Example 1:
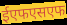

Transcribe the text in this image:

ईएफएसएफ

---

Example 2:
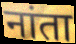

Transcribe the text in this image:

नांता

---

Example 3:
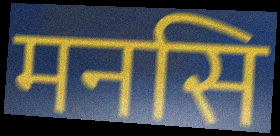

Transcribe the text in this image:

मनसि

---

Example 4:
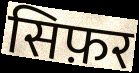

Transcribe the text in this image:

सिफ़र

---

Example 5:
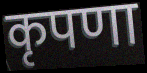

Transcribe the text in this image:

कृपणा